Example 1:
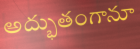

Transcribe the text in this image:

అద్భుతంగానూ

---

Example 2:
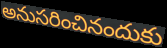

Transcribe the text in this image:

అనుసరించినందుకు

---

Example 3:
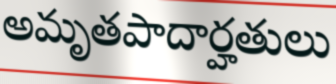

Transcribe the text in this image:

అమృతపాదార్హతులు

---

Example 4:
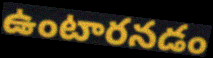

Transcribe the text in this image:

ఉంటారనడం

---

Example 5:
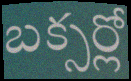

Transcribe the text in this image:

బక్సర్లో